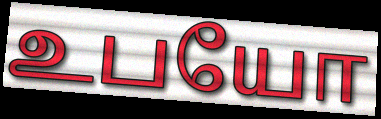
உபயோ